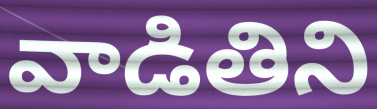
వాడితిని